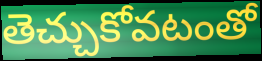
తెచ్చుకోవటంతో